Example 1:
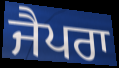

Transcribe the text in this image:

ਜੈਪਰਾ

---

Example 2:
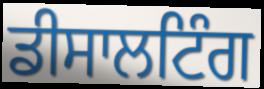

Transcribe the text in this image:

ਡੀਸਾਲਟਿੰਗ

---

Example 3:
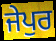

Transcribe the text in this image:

ਜੇਪੁਰ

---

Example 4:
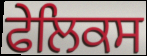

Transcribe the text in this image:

ਫੇਲਿਕਸ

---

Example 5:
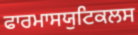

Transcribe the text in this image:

ਫਾਰਮਾਸਯੁਟਿਕਲਸ